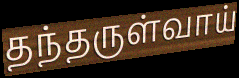
தந்தருள்வாய்